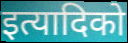
इत्यादिको